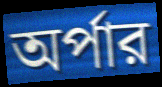
অর্পার